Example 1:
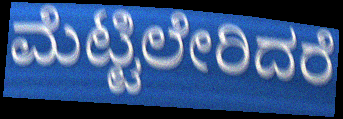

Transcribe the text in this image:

ಮೆಟ್ಟಿಲೇರಿದರೆ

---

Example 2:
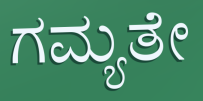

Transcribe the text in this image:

ಗಮ್ಯತೇ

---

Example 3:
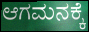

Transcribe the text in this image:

ಆಗಮನಕ್ಕೆ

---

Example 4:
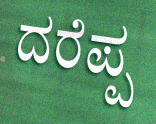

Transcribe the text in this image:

ದರೆಪ್ಪ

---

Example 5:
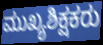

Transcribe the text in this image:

ಮುಖ್ಯಶಿಕ್ಷಕರು